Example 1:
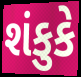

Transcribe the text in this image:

શંકુકે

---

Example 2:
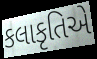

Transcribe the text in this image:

કલાકૃતિએ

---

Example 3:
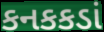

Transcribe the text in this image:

કનકકડાં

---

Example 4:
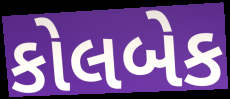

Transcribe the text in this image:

કોલબેક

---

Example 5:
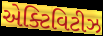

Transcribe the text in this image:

એક્ટિવિટીઝ